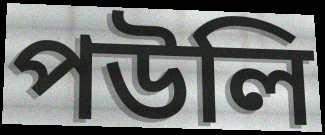
পউলি